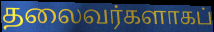
தலைவர்களாகப்